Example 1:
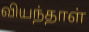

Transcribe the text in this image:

வியந்தாள்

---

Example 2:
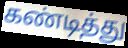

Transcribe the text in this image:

கண்டித்து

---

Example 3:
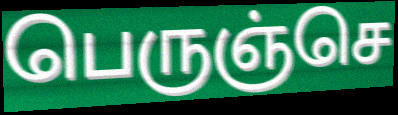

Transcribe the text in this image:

பெருஞ்செ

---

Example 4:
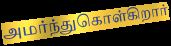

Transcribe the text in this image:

அமர்ந்துகொள்கிறார்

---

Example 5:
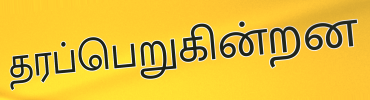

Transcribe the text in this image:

தரப்பெறுகின்றன